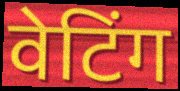
वेटिंग